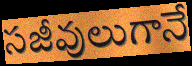
సజీవులుగానే